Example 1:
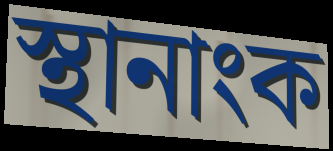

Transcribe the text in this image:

স্থানাংক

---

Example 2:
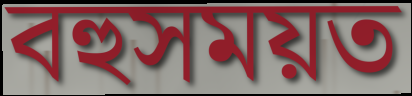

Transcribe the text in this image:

বহুসময়ত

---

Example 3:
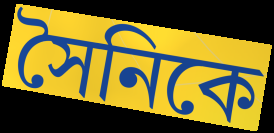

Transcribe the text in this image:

সৈনিকে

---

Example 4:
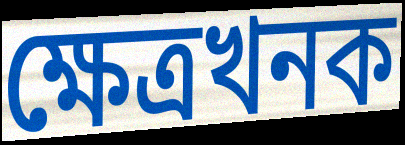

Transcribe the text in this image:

ক্ষেত্ৰখনক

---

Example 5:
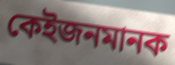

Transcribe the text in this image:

কেইজনমানক